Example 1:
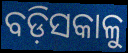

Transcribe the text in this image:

ବଡ଼ିସକାଳୁ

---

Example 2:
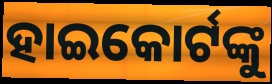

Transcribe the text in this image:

ହାଇକୋର୍ଟଙ୍କୁ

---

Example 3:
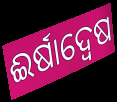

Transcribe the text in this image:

ଈର୍ଷାଦ୍ଵେଷ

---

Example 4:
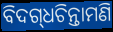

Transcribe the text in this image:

ବିଦଗ୍‌ଧଚିନ୍ତାମଣି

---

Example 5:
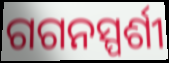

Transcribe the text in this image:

ଗଗନସ୍ପର୍ଶୀ